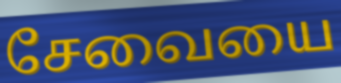
சேவையை